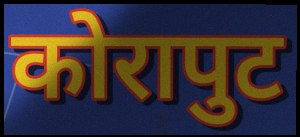
कोरापुट